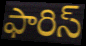
ఫారిస్